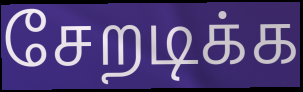
சேறடிக்க